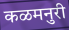
कळमनुरी